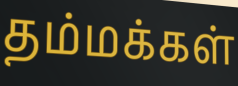
தம்மக்கள்